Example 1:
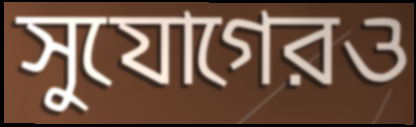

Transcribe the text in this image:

সুযোগেরও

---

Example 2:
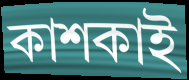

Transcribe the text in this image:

কাশকাই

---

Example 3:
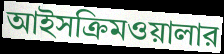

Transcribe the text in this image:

আইসক্রিমওয়ালার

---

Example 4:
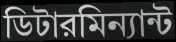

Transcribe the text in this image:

ডিটারমিন্যান্ট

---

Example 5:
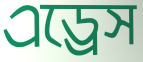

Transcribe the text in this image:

এড্রেস